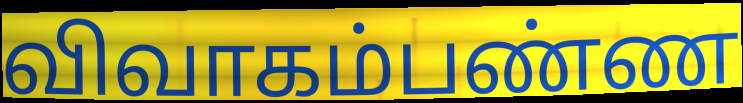
விவாகம்பண்ண